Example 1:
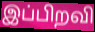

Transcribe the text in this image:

இப்பிறவி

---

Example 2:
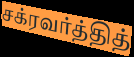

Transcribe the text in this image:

சக்ரவர்த்தித்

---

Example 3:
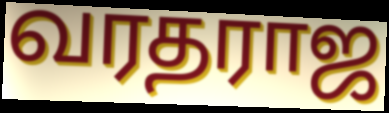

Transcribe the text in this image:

வரதராஜ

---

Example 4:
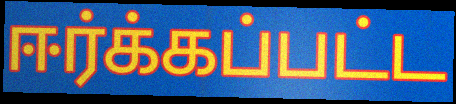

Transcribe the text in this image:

ஈர்க்கப்பட்ட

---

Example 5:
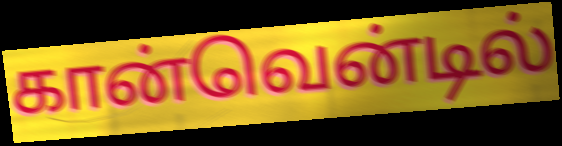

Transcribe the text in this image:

கான்வென்டில்